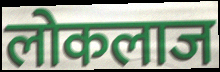
लोकलाज